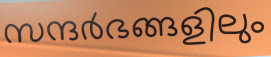
സന്ദർഭങ്ങളിലും